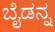
ಬೈಡನ್ನ